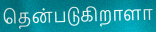
தென்படுகிறாளா